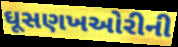
ઘૂસણખઓરીની